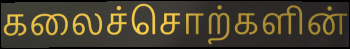
கலைச்சொற்களின்